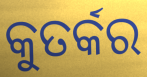
କୁତର୍କର